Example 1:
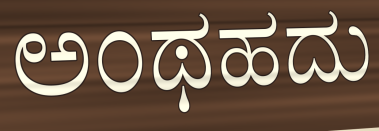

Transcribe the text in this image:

ಅಂಥಹದು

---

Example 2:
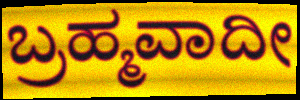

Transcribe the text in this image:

ಬ್ರಹ್ಮವಾದೀ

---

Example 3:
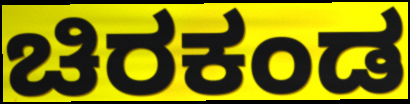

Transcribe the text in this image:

ಚಿರಕಂಡ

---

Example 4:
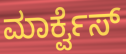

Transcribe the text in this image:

ಮಾರ್ಕ್ವೆಸ್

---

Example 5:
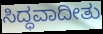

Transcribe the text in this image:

ಸಿದ್ಧವಾದೀತು